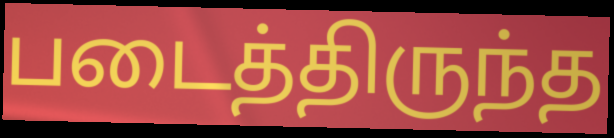
படைத்திருந்த